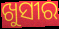
ଖୁସୀର